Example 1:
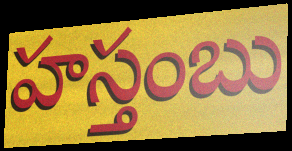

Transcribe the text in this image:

హస్తంబు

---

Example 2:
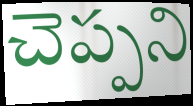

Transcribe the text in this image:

చెప్పని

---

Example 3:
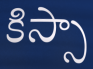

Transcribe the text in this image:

కిస్సా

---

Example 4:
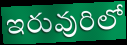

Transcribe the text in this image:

ఇరువురిలో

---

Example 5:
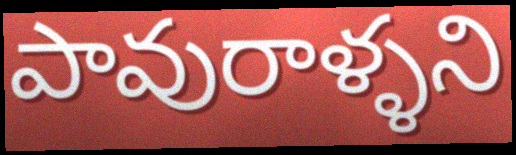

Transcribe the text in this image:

పావురాళ్ళని